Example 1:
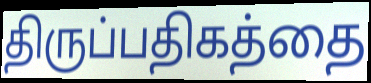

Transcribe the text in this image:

திருப்பதிகத்தை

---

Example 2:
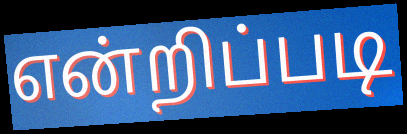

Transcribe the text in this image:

என்றிப்படி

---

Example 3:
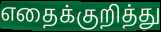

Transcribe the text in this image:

எதைக்குறித்து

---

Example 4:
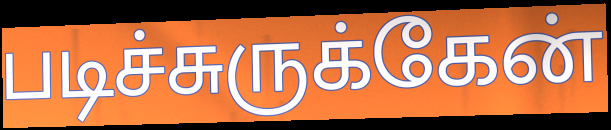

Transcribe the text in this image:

படிச்சுருக்கேன்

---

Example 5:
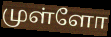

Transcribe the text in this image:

முள்ளோ